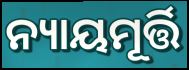
ନ୍ୟାୟମୂର୍ତ୍ତି